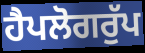
ਹੈਪਲੋਗਰੁੱਪ